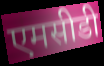
एमसीडी